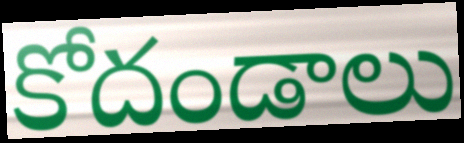
కోదండాలు